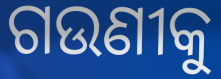
ଗଉଣୀକୁ